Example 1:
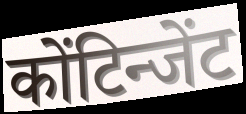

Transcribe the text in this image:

कोंटिन्जेंट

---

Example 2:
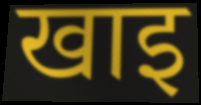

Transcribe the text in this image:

खाइ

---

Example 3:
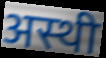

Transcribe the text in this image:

अस्थी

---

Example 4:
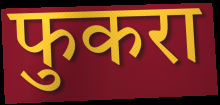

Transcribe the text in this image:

फुकरा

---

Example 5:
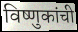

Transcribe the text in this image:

विष्णुकांची